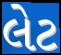
લેટ